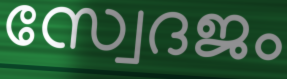
സ്വേദജം